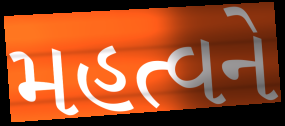
મહત્વને